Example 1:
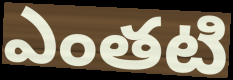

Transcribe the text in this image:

ఎంతటి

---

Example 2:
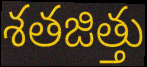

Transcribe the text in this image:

శతజిత్తు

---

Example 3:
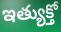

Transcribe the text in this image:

ఇత్యుక్తో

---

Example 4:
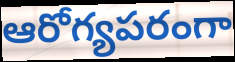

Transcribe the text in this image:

ఆరోగ్యపరంగా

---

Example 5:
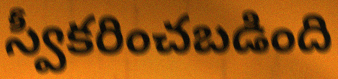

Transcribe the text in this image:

స్వీకరించబడింది